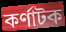
কৰ্ণাটক